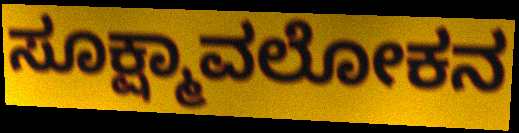
ಸೂಕ್ಷ್ಮಾವಲೋಕನ